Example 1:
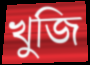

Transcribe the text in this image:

খুজি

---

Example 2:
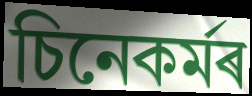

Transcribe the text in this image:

চিনেকৰ্মৰ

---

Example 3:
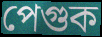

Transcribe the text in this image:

পেগুক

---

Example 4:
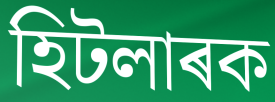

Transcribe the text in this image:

হিটলাৰক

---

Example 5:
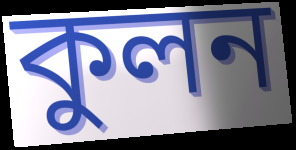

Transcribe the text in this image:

কুলন